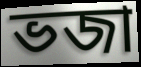
ভজা